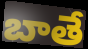
బాతే